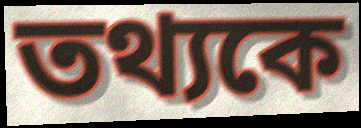
তথ্যকে